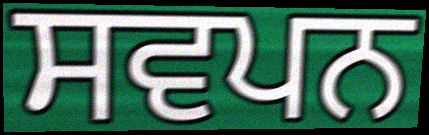
ਸਵਪਨ